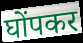
घोंपकर